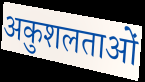
अकुशलताओं